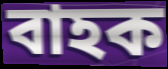
বাহক